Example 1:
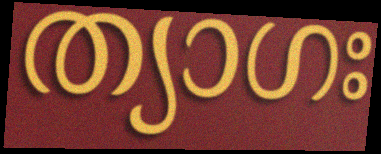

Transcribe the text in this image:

ത്യാഗഃ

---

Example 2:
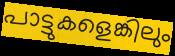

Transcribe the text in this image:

പാട്ടുകളെങ്കിലും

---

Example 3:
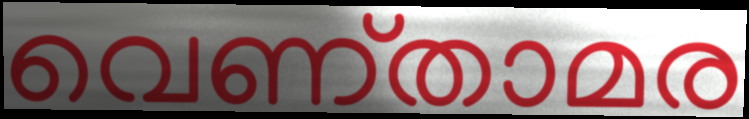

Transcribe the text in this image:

വെണ്താമര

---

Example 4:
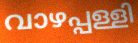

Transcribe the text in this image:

വാഴപ്പള്ളി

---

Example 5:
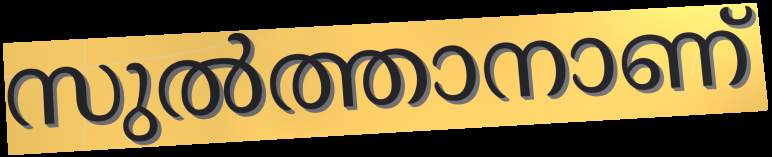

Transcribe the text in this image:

സുൽത്താനാണ്